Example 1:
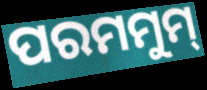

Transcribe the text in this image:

ପରମମୁମ୍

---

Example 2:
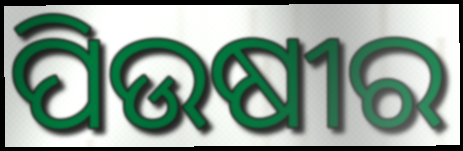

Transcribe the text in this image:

ପିଉଷୀର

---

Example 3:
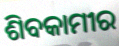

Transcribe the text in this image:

ଶିବକାମୀର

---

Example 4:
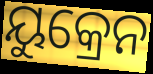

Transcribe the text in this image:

ୟୁକ୍ରେନ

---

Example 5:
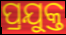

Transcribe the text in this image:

ପ୍ରଯୁକ୍ତ